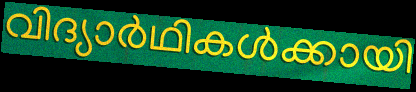
വിദ്യാർഥികൾക്കായി